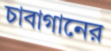
চাবাগানের